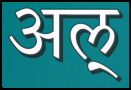
अल्